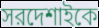
সরদেশাইকে